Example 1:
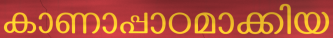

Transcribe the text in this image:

കാണാപ്പാഠമാക്കിയ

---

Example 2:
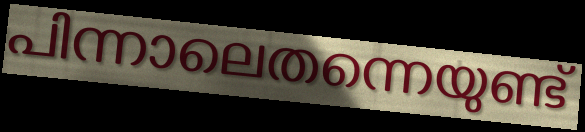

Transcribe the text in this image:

പിന്നാലെതന്നെയുണ്ട്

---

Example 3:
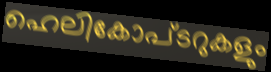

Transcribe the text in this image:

ഹെലികോപ്ടറുകളും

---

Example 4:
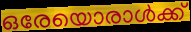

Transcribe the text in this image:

ഒരേയൊരാൾക്ക്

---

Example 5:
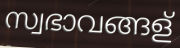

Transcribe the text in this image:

സ്വഭാവങ്ങള്